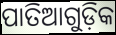
ପାତିଆଗୁଡ଼ିକ